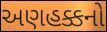
અણહક્કનો